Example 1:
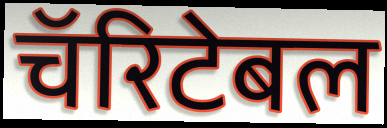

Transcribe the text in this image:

चॅरिटेबल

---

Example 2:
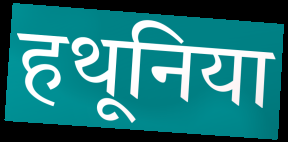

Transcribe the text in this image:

हथूनिया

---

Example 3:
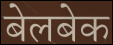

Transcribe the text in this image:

बेलबेक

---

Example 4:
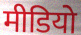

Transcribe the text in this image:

मीडियो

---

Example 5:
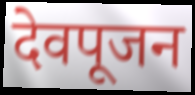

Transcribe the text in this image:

देवपूजन